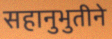
सहानुभुतीने